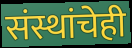
संस्थांचेही